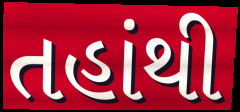
તહાંથી